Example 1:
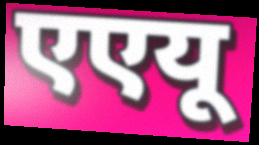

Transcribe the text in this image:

एएयू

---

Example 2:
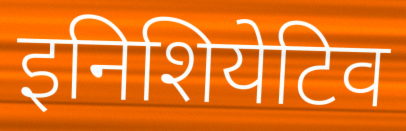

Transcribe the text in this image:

इनिशियेटिव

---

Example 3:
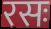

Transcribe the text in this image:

रसः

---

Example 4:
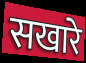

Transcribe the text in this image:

सखारे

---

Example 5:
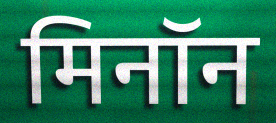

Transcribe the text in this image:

मिनॉन